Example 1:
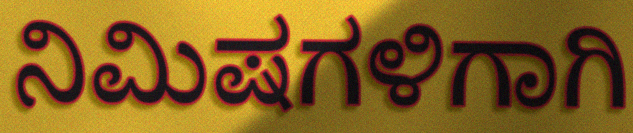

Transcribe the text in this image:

ನಿಮಿಷಗಳಿಗಾಗಿ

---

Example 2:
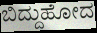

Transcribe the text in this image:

ಬಿದ್ದುಹೋದ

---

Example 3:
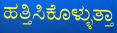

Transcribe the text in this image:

ಹತ್ತಿಸಿಕೊಳ್ಳುತ್ತಾ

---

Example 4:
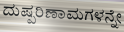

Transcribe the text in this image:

ದುಷ್ಪರಿಣಾಮಗಳನ್ನೇ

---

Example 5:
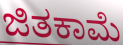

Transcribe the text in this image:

ಜಿತಕಾಮೆ